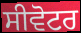
ਸੀਵੋਟਰ